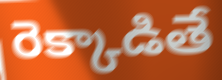
రెక్కాడితే